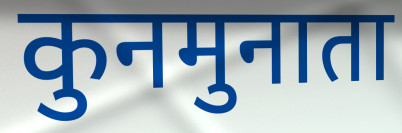
कुनमुनाता